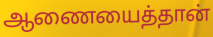
ஆணையைத்தான்